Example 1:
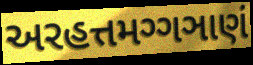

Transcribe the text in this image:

અરહત્તમગ્ગઞાણં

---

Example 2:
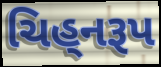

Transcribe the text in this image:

ચિહ્‌નરૂપ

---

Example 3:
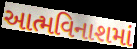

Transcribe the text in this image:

આત્મવિનાશમાં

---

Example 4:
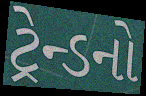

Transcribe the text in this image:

ટ્રેન્ડનો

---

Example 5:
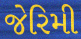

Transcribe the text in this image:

જેરિમી